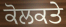
ਕੋਲਕਤੇ